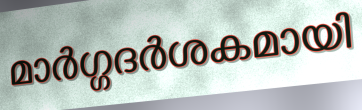
മാർഗ്ഗദർശകമായി